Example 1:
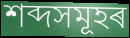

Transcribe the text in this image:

শব্দসমূহৰ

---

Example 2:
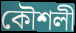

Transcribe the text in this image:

কৌশলী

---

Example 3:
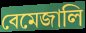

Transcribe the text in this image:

বেমেজালি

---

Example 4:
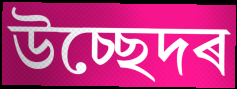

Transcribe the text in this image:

উচ্ছেদৰ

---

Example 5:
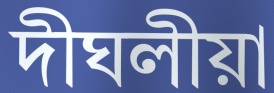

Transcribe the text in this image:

দীঘলীয়া